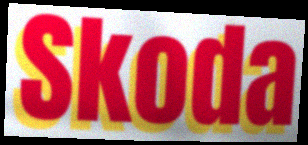
Skoda